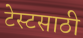
टेस्टसाठी